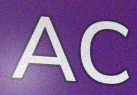
AC